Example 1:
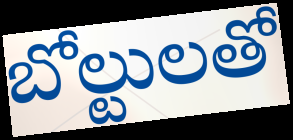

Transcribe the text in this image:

బోల్టులతో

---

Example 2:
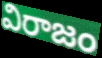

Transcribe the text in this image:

విరాజం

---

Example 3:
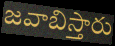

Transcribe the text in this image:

జవాబిస్తారు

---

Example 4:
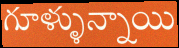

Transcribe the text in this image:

గూళ్ళున్నాయి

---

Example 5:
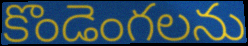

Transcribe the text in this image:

కొండెంగలను